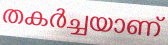
തകർച്ചയാണ്